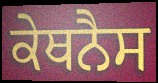
ਕੇਥਨੈਸ